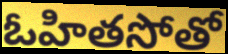
ఓహితసోతో